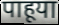
पाहूया